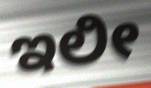
ಇಲೀ